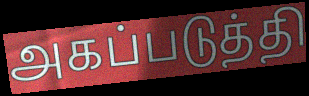
அகப்படுத்தி